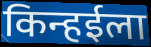
किन्हईला